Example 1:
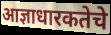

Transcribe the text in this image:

आज्ञाधारकतेचे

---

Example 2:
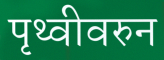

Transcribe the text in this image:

पृथ्वीवरुन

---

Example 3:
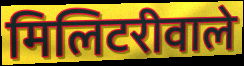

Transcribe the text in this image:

मिलिटरीवाले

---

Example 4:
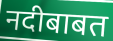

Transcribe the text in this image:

नदीबाबत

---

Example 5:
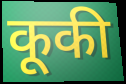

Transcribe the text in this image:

कूकी